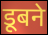
डूबने